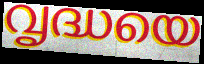
വൃദ്ധയെ